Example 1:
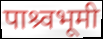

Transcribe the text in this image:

पाश्र्वभूमी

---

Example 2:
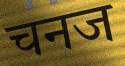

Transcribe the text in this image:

चनज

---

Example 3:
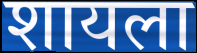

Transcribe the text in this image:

शायला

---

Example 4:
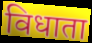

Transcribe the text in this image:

विधाता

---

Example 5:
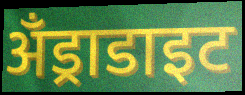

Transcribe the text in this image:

अँड्राडाइट